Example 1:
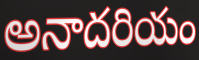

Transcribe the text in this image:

అనాదరియం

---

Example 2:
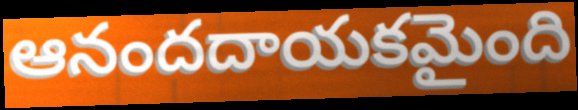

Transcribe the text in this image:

ఆనందదాయకమైంది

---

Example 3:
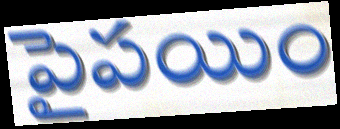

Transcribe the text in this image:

పైపయిం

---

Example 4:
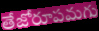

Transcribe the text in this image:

తేజోరూపమగు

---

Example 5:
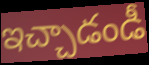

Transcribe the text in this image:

ఇచ్చాడండీ